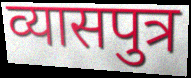
व्यासपुत्र